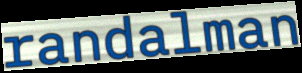
randalman